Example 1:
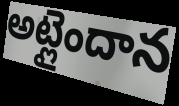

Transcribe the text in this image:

అట్లైందాన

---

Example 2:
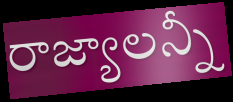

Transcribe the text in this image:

రాజ్యాలన్నీ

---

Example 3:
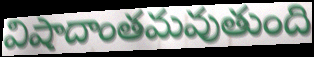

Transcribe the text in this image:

విషాదాంతమవుతుంది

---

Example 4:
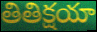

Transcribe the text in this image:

తితిక్షయా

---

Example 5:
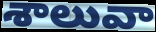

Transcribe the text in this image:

శాలువా